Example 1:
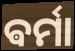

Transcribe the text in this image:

ଵର୍ମା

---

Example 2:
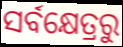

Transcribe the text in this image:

ସର୍ବକ୍ଷେତ୍ରରୁ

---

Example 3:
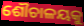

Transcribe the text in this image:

ଶୌଚାଳୟକୁ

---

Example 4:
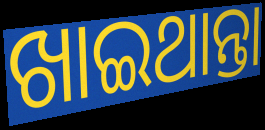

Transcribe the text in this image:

ଖାଇଥାନ୍ତା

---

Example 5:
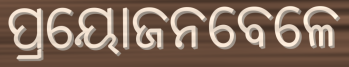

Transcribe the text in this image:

ପ୍ରୟୋଜନବେଳେ